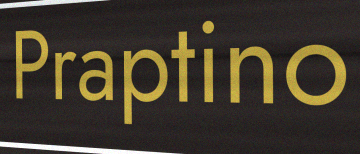
Praptino